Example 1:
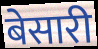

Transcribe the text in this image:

बेसारी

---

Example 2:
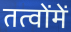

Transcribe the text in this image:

तत्वोंमें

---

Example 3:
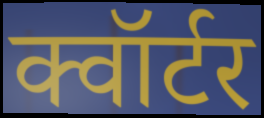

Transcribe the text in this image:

क्वॉर्टर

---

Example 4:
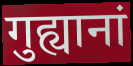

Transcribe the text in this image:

गुह्यानां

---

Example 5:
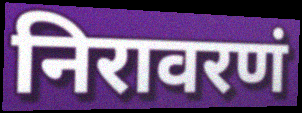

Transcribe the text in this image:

निरावरणं